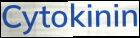
Cytokinin